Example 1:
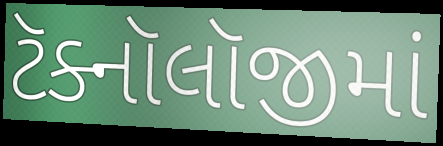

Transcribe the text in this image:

ટૅક્નૉલૉજીમાં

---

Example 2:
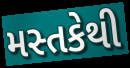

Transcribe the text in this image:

મસ્તકેથી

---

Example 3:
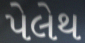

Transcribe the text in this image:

પેલેથ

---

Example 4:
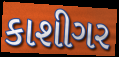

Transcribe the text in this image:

કાશીગર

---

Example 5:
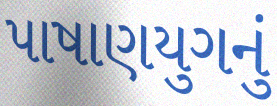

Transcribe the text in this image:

પાષાણયુગનું